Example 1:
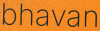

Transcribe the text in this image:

bhavan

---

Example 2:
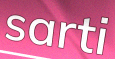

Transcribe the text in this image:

sarti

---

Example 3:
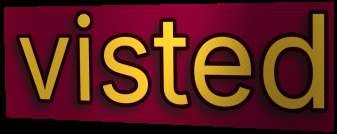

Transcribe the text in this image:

visted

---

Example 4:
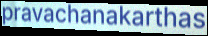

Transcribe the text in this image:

pravachanakarthas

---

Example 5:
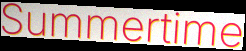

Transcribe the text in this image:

Summertime